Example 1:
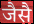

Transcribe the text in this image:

जैसै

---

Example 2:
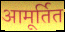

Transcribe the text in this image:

आमूर्तित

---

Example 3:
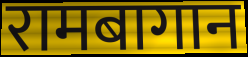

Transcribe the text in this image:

रामबागान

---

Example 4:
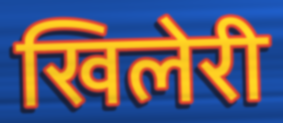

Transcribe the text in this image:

खिलेरी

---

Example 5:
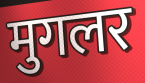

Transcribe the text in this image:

मुगलर